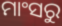
ମାଂସରୁ